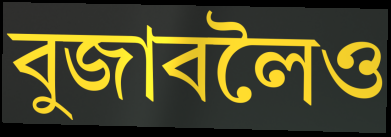
বুজাবলৈও